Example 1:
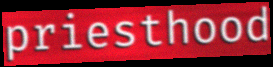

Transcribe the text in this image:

priesthood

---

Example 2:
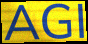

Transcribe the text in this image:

AGI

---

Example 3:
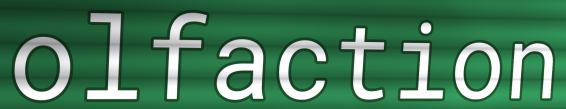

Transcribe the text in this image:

olfaction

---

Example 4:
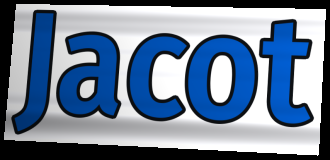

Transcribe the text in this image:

Jacot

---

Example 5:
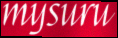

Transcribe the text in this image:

mysuru